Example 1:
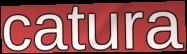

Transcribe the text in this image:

catura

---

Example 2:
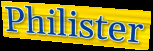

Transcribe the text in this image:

Philister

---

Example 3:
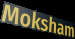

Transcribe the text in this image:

Moksham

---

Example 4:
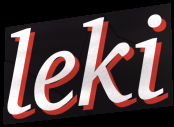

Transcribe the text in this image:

leki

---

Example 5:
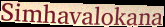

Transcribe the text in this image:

Simhavalokana